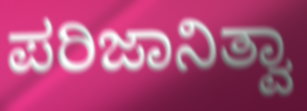
ಪರಿಜಾನಿತ್ವಾ